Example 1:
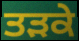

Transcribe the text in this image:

ਤੜਕੇ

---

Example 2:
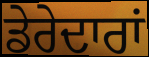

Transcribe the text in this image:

ਡੇਰੇਦਾਰਾਂ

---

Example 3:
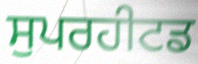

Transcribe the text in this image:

ਸੁਪਰਹੀਟਡ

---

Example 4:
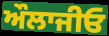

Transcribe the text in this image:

ਔਲਾਜੀਓ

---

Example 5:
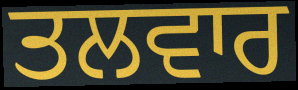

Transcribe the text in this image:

ਤਲਵਾਰ